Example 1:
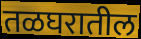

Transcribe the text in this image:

तळघरातील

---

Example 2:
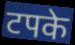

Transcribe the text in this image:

टपके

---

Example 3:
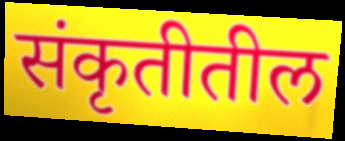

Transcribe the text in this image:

संकृतीतील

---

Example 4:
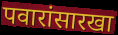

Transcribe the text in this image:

पवारांसारखा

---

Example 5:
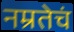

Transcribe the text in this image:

नम्रतेचं